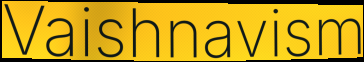
Vaishnavism